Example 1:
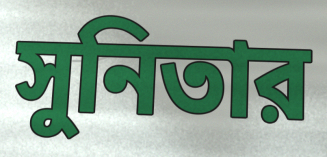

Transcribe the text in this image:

সুনিতার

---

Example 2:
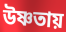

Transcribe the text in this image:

উষ্ণতায়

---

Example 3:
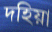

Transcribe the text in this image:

দহিয়া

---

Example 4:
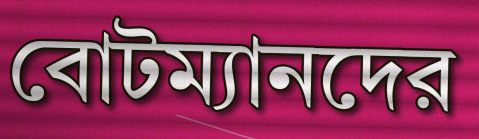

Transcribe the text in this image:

বোটম্যানদের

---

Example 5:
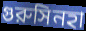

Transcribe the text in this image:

গুরুসিনহা